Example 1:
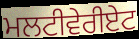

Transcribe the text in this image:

ਮਲਟੀਵੇਰੀਏਟ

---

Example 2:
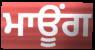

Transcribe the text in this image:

ਮਾਊਂਗ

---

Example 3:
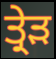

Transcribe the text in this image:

ਤ੍ਰੇੜ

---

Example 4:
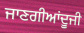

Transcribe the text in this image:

ਜਾਣਗੀਆਂਦੂਜੀ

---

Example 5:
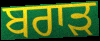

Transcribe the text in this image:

ਬਰਾਡ਼